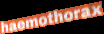
haemothorax